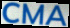
CMA